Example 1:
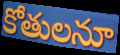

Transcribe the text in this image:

కోతులనూ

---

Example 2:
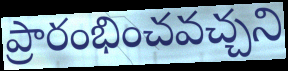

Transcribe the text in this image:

ప్రారంభించవచ్చని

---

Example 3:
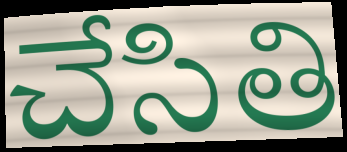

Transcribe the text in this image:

చేసితి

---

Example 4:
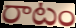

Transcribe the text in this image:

రాటం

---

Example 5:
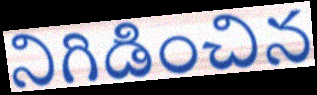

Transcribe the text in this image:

నిగిడించిన